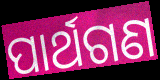
ପାର୍ଥଗଣ